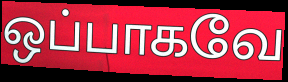
ஒப்பாகவே